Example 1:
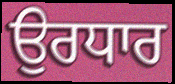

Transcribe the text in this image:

ਉਰਧਾਰ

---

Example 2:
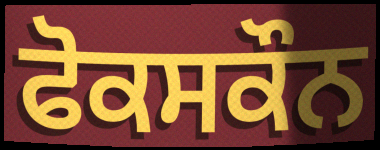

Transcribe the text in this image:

ਫੋਕਸਕੌਨ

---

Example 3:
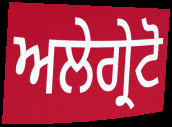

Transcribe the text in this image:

ਅਲੇਗ੍ਰੇਟੋ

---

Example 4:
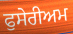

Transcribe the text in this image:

ਫੁਸੇਰੀਅਮ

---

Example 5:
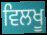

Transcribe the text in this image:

ਵਿਲਖੂ